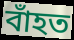
বাঁহত